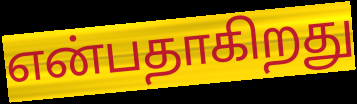
என்பதாகிறது